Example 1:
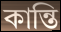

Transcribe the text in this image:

কান্তি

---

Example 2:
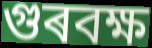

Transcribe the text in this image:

গুৰবক্ষ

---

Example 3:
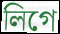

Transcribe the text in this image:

লিগে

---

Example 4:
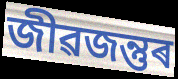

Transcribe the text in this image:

জীৱজন্তুৰ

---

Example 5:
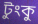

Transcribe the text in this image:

টুংকু